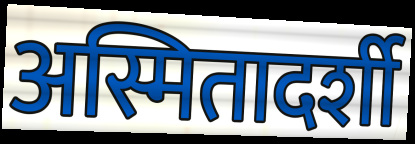
अस्मितादर्शी